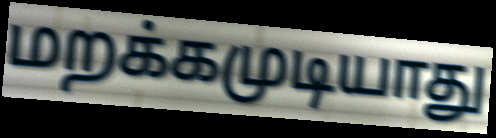
மறக்கமுடியாது